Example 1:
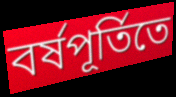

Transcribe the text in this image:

বর্ষপূর্তিতে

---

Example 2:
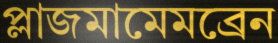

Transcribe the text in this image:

প্লাজমামেমব্রেন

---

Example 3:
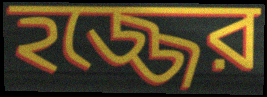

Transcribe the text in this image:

হজ্জের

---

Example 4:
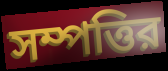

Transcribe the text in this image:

সম্পত্তির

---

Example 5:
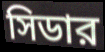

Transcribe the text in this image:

সিডার